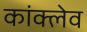
कांक्लेव